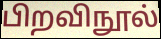
பிறவிநூல்